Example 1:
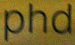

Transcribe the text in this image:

phd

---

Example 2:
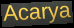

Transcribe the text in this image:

Acarya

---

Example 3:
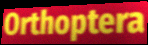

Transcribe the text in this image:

Orthoptera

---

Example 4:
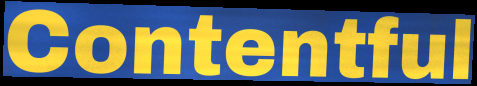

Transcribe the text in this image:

Contentful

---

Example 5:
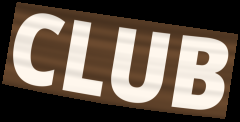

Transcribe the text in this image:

CLUB